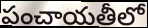
పంచాయతీలో